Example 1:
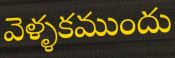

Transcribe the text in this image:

వెళ్ళకముందు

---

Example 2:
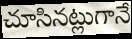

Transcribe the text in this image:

చూసినట్లుగానే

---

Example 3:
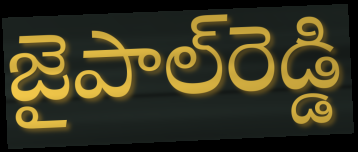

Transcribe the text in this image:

జైపాల్‌రెడ్డి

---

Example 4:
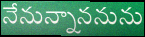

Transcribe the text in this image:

నేనున్నాననును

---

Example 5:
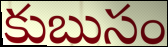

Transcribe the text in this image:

కుబుసం